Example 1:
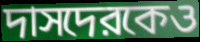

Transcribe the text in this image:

দাসদেরকেও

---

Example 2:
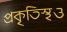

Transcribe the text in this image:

প্রকৃতিস্থও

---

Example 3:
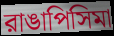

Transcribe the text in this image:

রাঙাপিসিমা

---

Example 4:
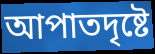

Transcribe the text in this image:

আপাতদৃষ্টে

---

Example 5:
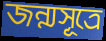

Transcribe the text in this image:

জন্মসূত্রে